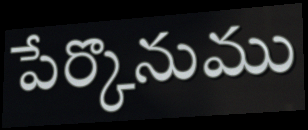
పేర్కొనుము